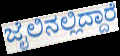
ಜೈಲಿನಲ್ಲಿದ್ದಾರೆ